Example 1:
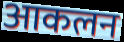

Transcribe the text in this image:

आकलन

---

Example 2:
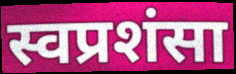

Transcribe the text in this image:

स्वप्रशंसा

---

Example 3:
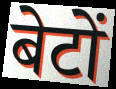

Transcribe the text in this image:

बेटों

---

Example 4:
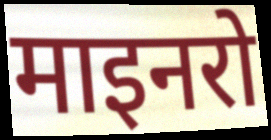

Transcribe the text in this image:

माइनरो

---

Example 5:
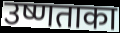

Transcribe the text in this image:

उष्णताका